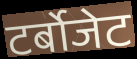
टर्बोजेट